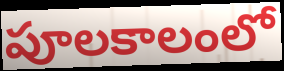
పూలకాలంలో